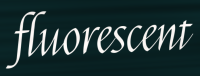
fluorescent